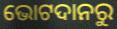
ଭୋଟଦାନରୁ